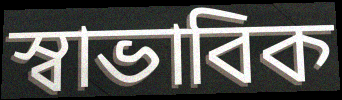
স্বাভাবিক